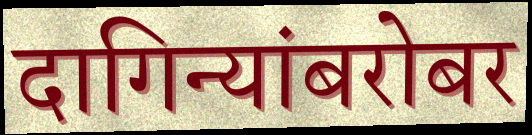
दागिन्यांबरोबर